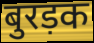
बुरड़क